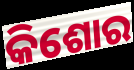
କିଶୋର